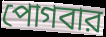
পোগবার